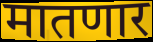
मातणार